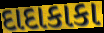
દાદાકાકા